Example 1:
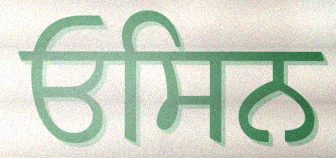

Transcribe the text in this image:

ਓਸਿਨ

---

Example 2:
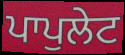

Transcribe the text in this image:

ਪਾਪੁਲੇਟ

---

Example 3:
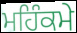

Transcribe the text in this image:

ਮਹਿੰਕਮੇ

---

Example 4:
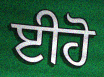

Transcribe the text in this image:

ਈਹੋ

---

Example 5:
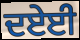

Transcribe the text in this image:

ਦਏਈ